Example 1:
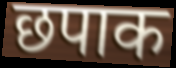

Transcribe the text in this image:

छपाक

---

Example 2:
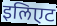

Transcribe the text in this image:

इलिएट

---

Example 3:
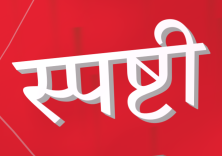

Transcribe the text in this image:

स्पष्टी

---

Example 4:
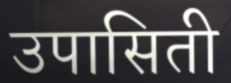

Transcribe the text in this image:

उपासिती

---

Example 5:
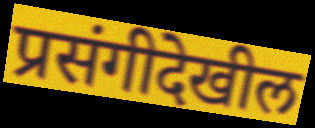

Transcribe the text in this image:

प्रसंगीदेखील